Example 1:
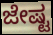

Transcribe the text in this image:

ಜೇಷ್ಟ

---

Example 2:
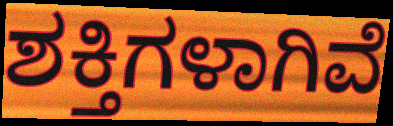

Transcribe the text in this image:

ಶಕ್ತಿಗಳಾಗಿವೆ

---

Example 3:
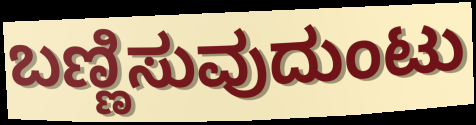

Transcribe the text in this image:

ಬಣ್ಣಿಸುವುದುಂಟು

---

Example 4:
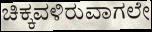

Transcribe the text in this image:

ಚಿಕ್ಕವಳಿರುವಾಗಲೇ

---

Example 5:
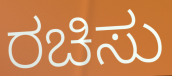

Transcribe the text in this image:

ರಚಿಸು